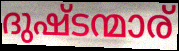
ദുഷ്ടന്മാര്